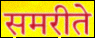
समरीते